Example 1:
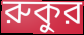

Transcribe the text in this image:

রুকুর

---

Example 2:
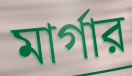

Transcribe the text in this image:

মার্গার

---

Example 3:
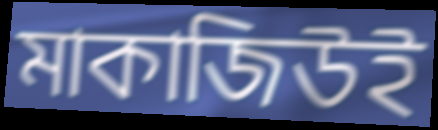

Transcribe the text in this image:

মাকাজিউই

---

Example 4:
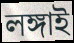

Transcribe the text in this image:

লঙ্গাই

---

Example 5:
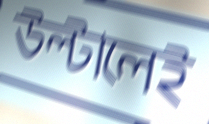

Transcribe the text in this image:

উল্টালেই